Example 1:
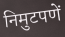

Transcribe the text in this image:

निमुटपणें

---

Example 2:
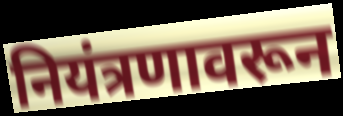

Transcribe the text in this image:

नियंत्रणावरून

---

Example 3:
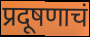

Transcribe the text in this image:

प्रदूषणाचं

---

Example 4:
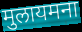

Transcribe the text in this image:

मुलायमना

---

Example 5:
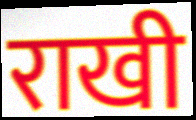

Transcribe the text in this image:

राखी